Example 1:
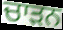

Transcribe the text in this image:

ਚਾੜਨ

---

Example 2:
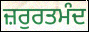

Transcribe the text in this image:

ਜ਼ਰੁਰਤਮੰਦ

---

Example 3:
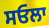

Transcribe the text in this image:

ਸਓਲਾ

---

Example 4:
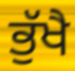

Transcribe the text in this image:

ਭੁੱਖੈ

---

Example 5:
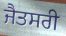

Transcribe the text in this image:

ਜੈਤਸਰੀ